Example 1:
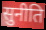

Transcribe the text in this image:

सुनीति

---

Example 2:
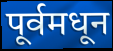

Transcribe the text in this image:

पूर्वमधून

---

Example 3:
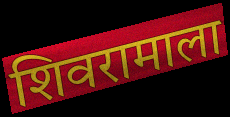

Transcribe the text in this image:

शिवरामाला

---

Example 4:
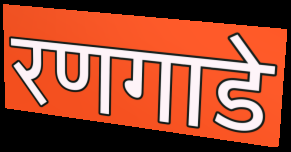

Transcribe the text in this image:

रणगाडे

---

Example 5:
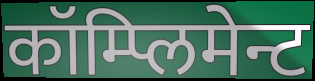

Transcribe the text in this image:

कॉम्प्लिमेन्ट